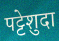
पट्टेशुदा